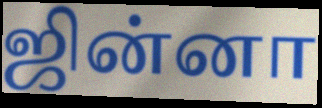
ஜின்னா